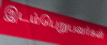
இடம்பெறுபவர்கள்